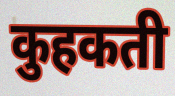
कुहकती